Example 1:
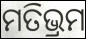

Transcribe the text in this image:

ମତିଭ୍ରମ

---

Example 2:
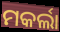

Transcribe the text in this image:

ମକର୍ଲା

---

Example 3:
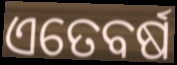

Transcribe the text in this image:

ଏତେବର୍ଷ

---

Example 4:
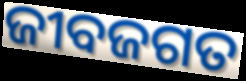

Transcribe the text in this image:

ଜୀବଜଗତ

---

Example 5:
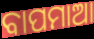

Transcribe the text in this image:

ବାପମାଆ